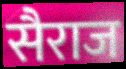
सैराज